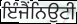
ਇੰਜੈਂਨਿਉਟੀ